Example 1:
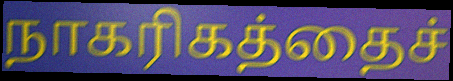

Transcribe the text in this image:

நாகரிகத்தைச்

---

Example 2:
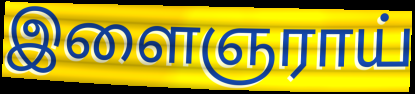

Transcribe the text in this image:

இளைஞராய்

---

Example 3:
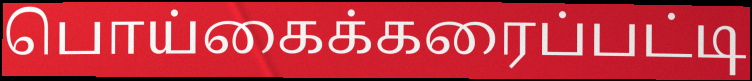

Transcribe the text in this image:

பொய்கைக்கரைப்பட்டி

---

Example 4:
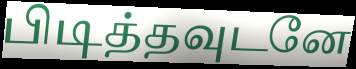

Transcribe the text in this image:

பிடித்தவுடனே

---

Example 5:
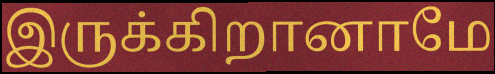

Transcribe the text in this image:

இருக்கிறானாமே